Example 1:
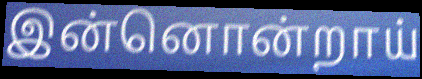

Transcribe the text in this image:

இன்னொன்றாய்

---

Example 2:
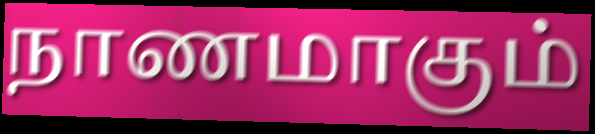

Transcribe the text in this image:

நாணமாகும்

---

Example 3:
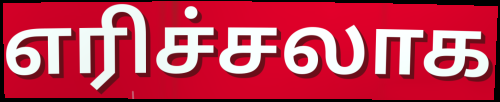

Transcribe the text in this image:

எரிச்சலாக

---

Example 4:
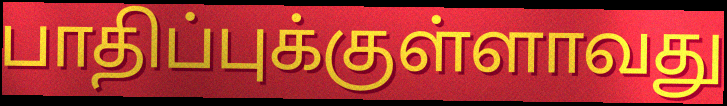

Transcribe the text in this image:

பாதிப்புக்குள்ளாவது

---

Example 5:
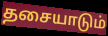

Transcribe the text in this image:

தசையாடும்